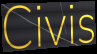
Civis